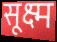
सूक्ष्म